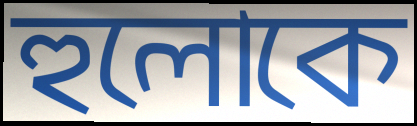
হুলোকে